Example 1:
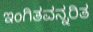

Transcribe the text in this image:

ಇಂಗಿತವನ್ನರಿತ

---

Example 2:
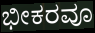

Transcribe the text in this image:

ಭೀಕರವೂ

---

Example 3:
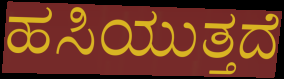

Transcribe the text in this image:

ಹಸಿಯುತ್ತದೆ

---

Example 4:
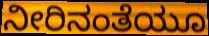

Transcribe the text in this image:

ನೀರಿನಂತೆಯೂ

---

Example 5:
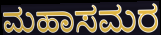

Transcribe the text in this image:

ಮಹಾಸಮರ